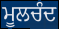
ਮੂਲਚੰਦ